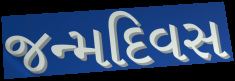
જન્મદિવસ